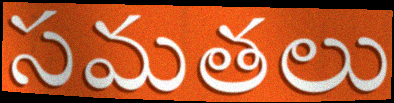
సమతలు